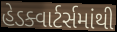
હેડક્વાર્ટર્સમાંથી